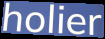
holier